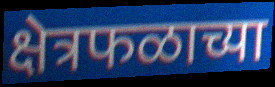
क्षेत्रफळाच्या